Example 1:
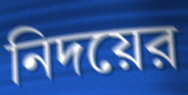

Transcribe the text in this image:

নিদয়ের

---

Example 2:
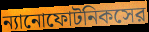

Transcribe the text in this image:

ন্যানোফোটনিকসের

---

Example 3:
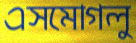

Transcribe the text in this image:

এসমোগলু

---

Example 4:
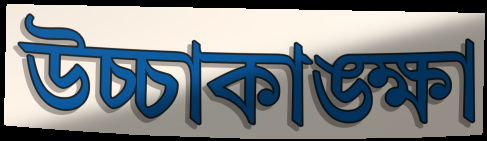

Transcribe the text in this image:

উচ্চাকাঙ্ক্ষা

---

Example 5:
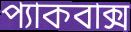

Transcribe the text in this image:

প্যাকবাক্স